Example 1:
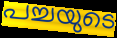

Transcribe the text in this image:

പച്ചയുടെ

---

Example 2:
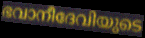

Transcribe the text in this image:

ഭവാനീദേവിയുടെ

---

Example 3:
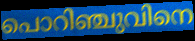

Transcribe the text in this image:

പൊറിഞ്ചുവിനെ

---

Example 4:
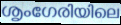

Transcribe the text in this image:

ശൃംഗേരിയിലെ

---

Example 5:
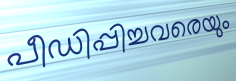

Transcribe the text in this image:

പീഡിപ്പിച്ചവരെയും